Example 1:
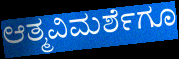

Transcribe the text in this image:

ಆತ್ಮವಿಮರ್ಶೆಗೂ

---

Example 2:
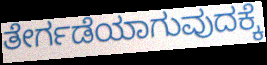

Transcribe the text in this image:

ತೇರ್ಗಡೆಯಾಗುವುದಕ್ಕೆ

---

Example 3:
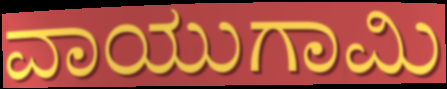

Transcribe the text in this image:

ವಾಯುಗಾಮಿ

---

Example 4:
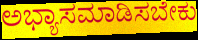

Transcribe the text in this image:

ಅಭ್ಯಾಸಮಾಡಿಸಬೇಕು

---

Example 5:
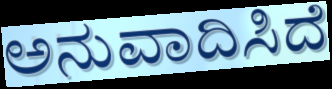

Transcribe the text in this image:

ಅನುವಾದಿಸಿದೆ